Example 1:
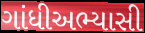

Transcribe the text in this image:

ગાંધીઅભ્યાસી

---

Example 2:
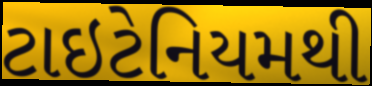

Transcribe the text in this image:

ટાઇટેનિયમથી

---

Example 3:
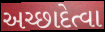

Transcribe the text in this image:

અચ્છાદેત્વા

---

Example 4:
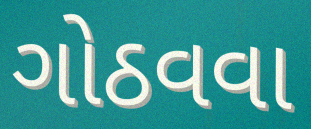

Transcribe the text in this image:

ગોઠવવા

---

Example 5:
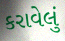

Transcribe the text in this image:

કરાવેલું